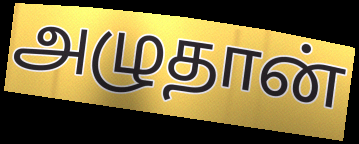
அழுதான்